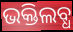
ଭକ୍ତିଲବ୍ଧ